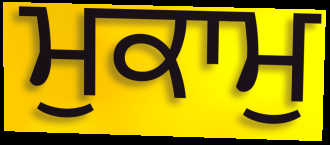
ਮੁਕਾਮੁ